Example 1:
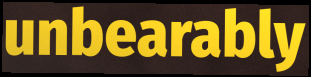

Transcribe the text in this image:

unbearably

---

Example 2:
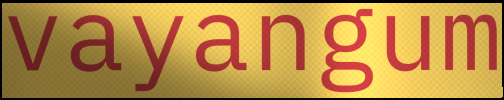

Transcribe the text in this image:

vayangum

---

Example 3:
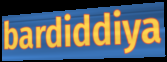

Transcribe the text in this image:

bardiddiya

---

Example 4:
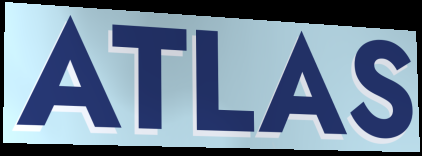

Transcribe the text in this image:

ATLAS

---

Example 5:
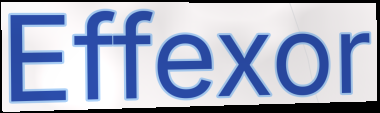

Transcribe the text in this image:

Effexor